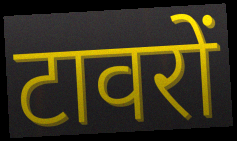
टावरों